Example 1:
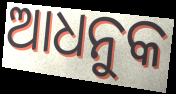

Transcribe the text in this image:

ଆଧନୁକ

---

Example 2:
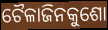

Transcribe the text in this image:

ଚୈଳାଜିନକୁଶୋ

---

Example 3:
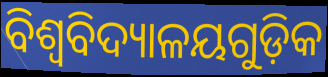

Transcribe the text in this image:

ବିଶ୍ଵବିଦ୍ୟାଳୟଗୁଡ଼ିକ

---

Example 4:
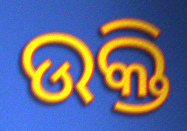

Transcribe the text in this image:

ଉକ୍ତି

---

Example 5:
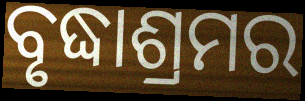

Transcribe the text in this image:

ବୃଦ୍ଧାଶ୍ରମର